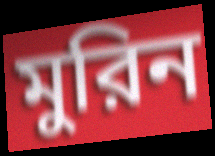
মুরিন